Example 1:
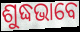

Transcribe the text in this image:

ଶୁଦ୍ଧଭାବେ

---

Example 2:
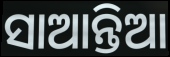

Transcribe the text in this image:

ସାଆନ୍ତିଆ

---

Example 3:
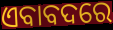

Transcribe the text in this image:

ଏବାବଦରେ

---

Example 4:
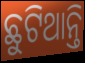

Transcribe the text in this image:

ଛୁଟିଥାନ୍ତି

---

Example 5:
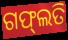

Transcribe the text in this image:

ଗଫ୍‌ଲତି